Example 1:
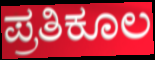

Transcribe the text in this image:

ಪ್ರತಿಕೂಲ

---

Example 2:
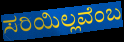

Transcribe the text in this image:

ಸರಿಯಿಲ್ಲವೆಂಬ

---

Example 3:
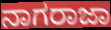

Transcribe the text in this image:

ನಾಗರಾಜಾ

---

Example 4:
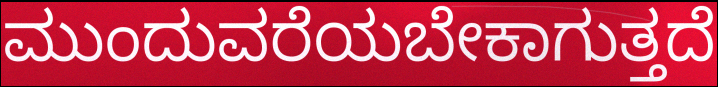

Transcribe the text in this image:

ಮುಂದುವರೆಯಬೇಕಾಗುತ್ತದೆ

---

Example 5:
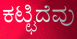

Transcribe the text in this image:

ಕಟ್ಟಿದೆವು